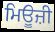
ਮਿਊਜ਼ੀ